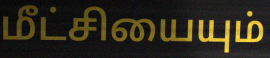
மீட்சியையும்